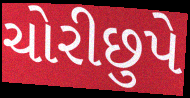
ચોરીછુપે